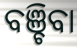
ବଞ୍ଚିବା